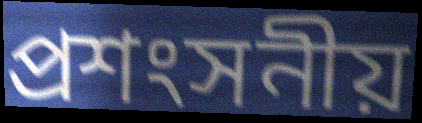
প্ৰশংসনীয়